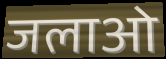
जलाओ